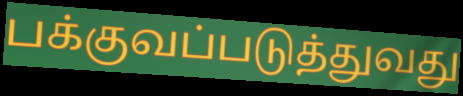
பக்குவப்படுத்துவது